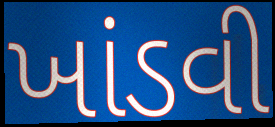
ખાંડવી